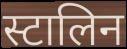
स्टालिन